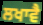
ਲਖਾਵੈ